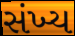
સંખ્ય